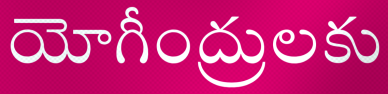
యోగీంద్రులకు